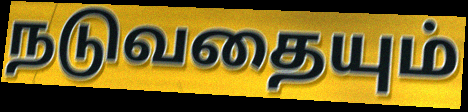
நடுவதையும்